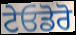
ਟੇਓਡੋਰੋ